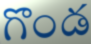
గొండ